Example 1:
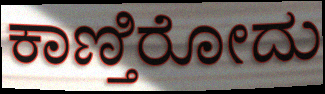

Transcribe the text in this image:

ಕಾಣ್ತಿರೋದು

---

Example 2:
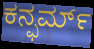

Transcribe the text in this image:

ಕನ್ಫರ್ಮ್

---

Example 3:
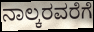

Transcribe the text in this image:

ನಾಲ್ಕರವರೆಗೆ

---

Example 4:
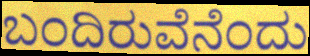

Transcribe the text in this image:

ಬಂದಿರುವೆನೆಂದು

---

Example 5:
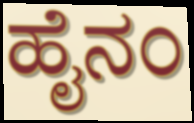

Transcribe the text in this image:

ಹೈನಂ